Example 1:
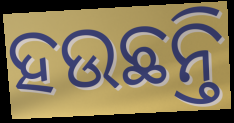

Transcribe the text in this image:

ହଉଛନ୍ତି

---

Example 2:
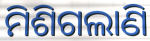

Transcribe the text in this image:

ମିଶିଗଲାଣି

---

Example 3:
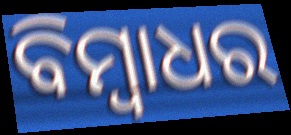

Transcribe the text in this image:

ବିମ୍ବାଧର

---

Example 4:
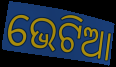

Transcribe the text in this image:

ଭେଟିଆ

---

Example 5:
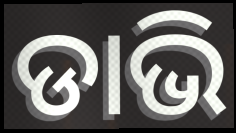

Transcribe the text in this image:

ଡାଭି